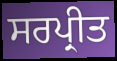
ਸਰਪ੍ਰੀਤ